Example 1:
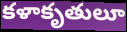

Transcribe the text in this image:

కళాకృతులూ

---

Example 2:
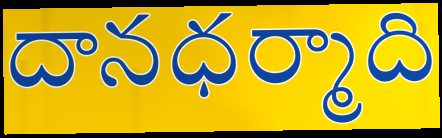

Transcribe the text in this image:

దానధర్మాది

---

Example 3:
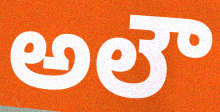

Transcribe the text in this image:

అలౌ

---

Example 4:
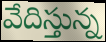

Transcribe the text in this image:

వేదిస్తున్న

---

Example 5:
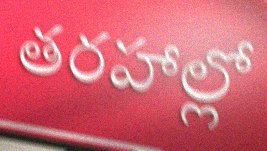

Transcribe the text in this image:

తరహాల్లో